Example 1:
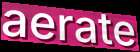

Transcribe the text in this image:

aerate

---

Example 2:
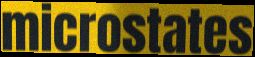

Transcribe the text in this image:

microstates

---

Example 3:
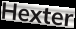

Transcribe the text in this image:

Hexter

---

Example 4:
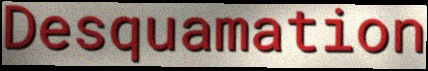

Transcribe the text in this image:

Desquamation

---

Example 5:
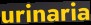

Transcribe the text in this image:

urinaria